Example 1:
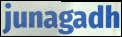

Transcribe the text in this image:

junagadh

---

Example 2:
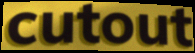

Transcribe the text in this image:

cutout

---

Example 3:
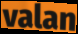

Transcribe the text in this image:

valan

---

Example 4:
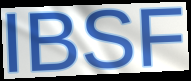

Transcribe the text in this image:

IBSF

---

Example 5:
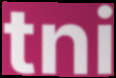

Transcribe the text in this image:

tni